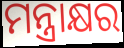
ମନ୍ତ୍ରାକ୍ଷର